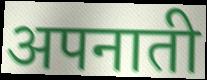
अपनाती